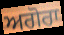
ਅਗੋਰਾ